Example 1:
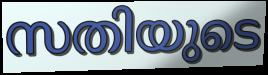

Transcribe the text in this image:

സതിയുടെ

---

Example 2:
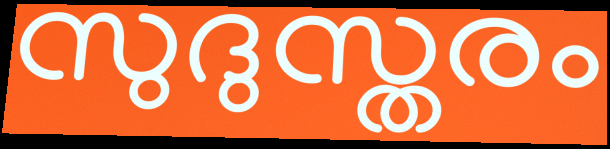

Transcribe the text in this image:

സുദുസ്തരം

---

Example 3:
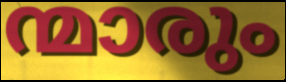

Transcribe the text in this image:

ന്മാരും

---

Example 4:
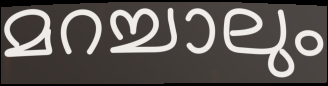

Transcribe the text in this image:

മറച്ചാലും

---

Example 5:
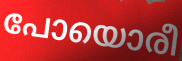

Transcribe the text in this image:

പോയൊരീ